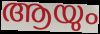
ആയും